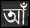
আঁ